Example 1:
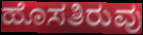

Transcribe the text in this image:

ಹೊಸತಿರುವು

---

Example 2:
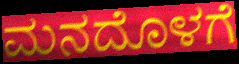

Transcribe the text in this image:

ಮನದೊಳಗೆ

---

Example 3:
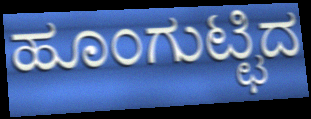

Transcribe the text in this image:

ಹೂಂಗುಟ್ಟಿದ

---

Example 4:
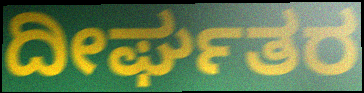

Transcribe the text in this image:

ದೀರ್ಘತರ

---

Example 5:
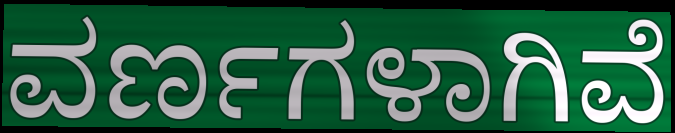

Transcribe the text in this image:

ವರ್ಣಗಳಾಗಿವೆ